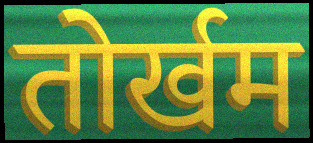
तोर्खम